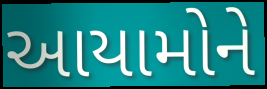
આયામોને